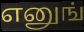
எனுங்